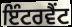
ਇੰਟਰਵੈਂਟ